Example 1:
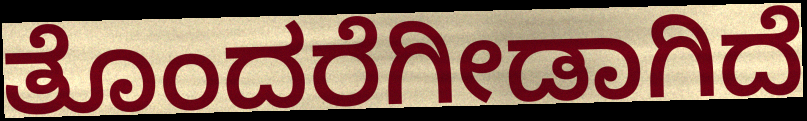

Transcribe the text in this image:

ತೊಂದರೆಗೀಡಾಗಿದೆ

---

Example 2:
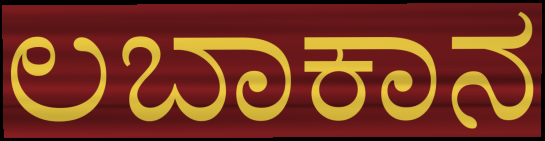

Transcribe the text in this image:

ಲಬಾಕಾನ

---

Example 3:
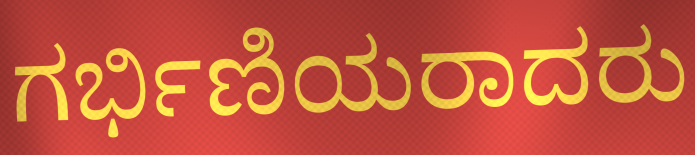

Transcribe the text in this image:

ಗರ್ಭಿಣಿಯರಾದರು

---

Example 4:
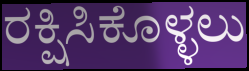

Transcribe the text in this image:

ರಕ್ಷಿಸಿಕೊಳ್ಳಲು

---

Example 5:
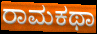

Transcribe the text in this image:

ರಾಮಕಥಾ